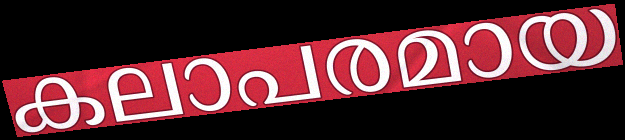
കലാപരമായ